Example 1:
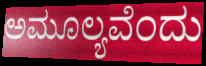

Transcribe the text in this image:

ಅಮೂಲ್ಯವೆಂದು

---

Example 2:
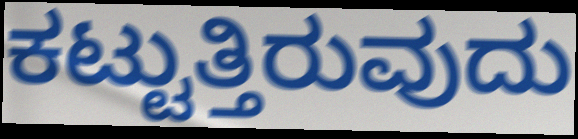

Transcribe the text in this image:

ಕಟ್ಟುತ್ತಿರುವುದು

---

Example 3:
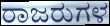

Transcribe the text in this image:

ರಾಜರುಗಳ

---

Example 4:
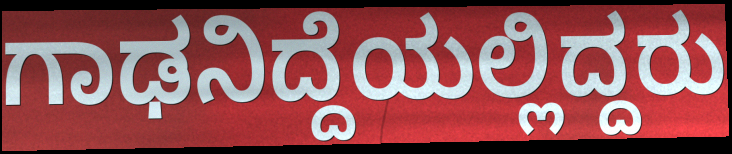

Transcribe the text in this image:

ಗಾಢನಿದ್ದೆಯಲ್ಲಿದ್ದರು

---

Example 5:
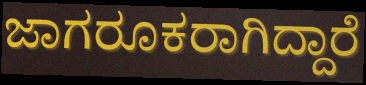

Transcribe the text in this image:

ಜಾಗರೂಕರಾಗಿದ್ದಾರೆ